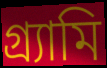
গ্র্যামি